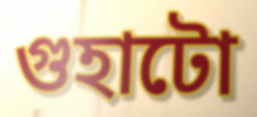
গুহাটো